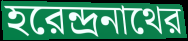
হরেন্দ্রনাথের